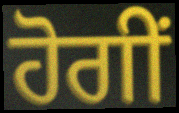
ਹੋਗੀਂ